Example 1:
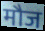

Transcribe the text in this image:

मौज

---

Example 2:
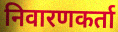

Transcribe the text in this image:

निवारणकर्ता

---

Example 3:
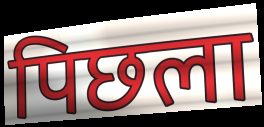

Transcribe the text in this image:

पिछला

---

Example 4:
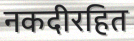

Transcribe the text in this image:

नकदीरहित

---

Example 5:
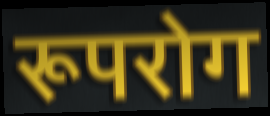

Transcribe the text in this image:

रूपरोग